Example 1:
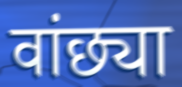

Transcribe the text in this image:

वांछ्या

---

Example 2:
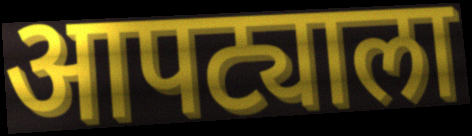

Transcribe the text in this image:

आपट्याला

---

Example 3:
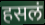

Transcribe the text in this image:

हसलं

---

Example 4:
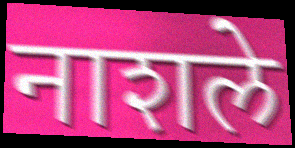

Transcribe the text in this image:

नाशले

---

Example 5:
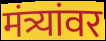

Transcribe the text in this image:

मंत्र्यांवर